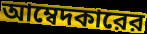
আম্বেদকারের